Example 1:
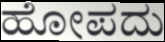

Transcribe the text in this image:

ಹೋಪದು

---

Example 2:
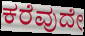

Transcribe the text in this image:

ಕರೆವುದೇ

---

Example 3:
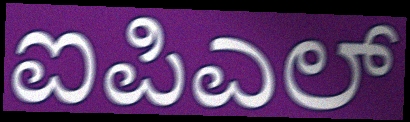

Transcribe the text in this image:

ಐಪಿಎಲ್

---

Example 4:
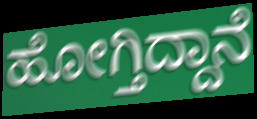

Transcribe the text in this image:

ಹೋಗ್ತಿದ್ದಾನೆ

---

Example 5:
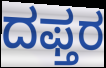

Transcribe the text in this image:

ದಫ್ತರ